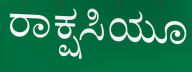
ರಾಕ್ಷಸಿಯೂ